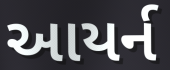
આયર્ન